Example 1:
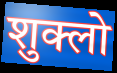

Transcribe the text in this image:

शुक्लो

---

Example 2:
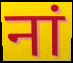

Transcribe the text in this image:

नां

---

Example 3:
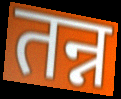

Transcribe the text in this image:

तन्न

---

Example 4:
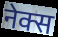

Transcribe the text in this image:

नेक्स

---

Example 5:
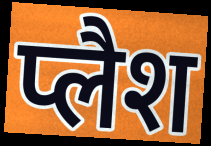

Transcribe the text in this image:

प्लैश